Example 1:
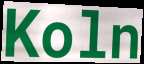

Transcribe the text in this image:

Koln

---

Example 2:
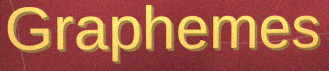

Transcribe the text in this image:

Graphemes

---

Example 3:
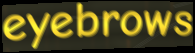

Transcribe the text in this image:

eyebrows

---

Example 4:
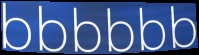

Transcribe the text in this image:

bbbbbb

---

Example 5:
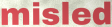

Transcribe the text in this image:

misled